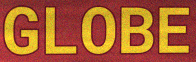
GLOBE